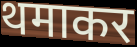
थमाकर